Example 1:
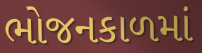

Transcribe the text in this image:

ભોજનકાળમાં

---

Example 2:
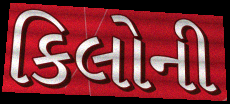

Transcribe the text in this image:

કિલોની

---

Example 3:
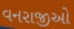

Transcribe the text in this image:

વનરાજીઓ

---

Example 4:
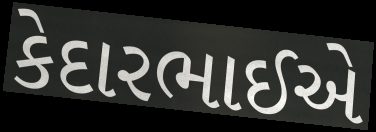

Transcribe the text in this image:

કેદારભાઈએ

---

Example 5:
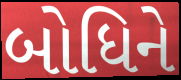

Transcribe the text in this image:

બોધિને